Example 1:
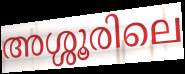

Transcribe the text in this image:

അശ്ശൂരിലെ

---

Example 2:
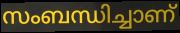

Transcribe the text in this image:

സംബന്ധിച്ചാണ്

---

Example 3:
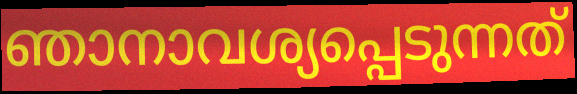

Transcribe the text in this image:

ഞാനാവശ്യപ്പെടുന്നത്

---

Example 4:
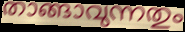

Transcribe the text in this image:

താങ്ങാവുന്നതും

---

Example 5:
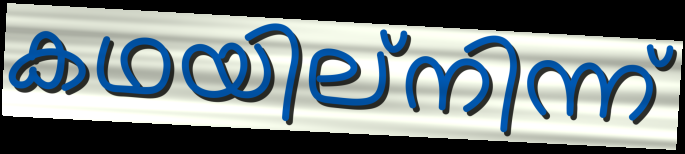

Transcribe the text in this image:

കഥയില്നിന്ന്